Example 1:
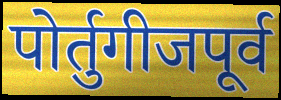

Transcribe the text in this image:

पोर्तुगीजपूर्व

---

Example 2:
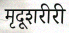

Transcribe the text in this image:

मृदूशरीरी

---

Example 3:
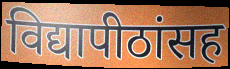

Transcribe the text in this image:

विद्यापीठांसह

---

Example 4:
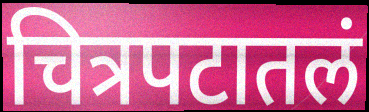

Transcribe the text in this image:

चित्रपटातलं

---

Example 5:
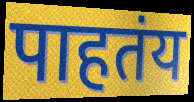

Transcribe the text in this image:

पाहतंय